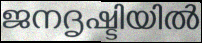
ജനദൃഷ്ടിയിൽ